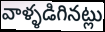
వాళ్ళడిగినట్లు